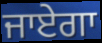
ਜਾਏਗਾ